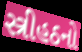
સ્ત્રીહઠનો